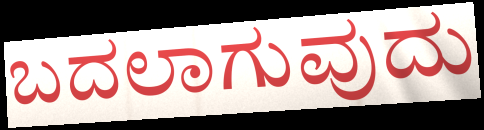
ಬದಲಾಗುವುದು